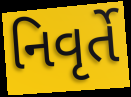
નિવૃર્તે